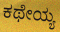
ಕಥೇಯ್ಯ